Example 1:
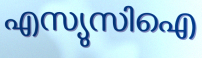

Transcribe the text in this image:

എസ്യുസിഐ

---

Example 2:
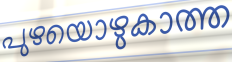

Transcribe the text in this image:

പുഴയൊഴുകാത്ത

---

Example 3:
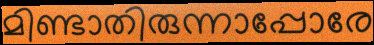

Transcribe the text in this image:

മിണ്ടാതിരുന്നാപ്പോരേ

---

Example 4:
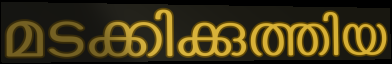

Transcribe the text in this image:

മടക്കിക്കുത്തിയ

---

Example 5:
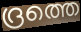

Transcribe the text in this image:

ദ്രത്തെ